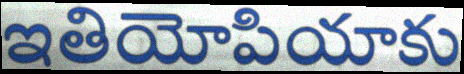
ఇతియోపియాకు